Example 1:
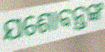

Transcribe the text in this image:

ଯଶୋବନ୍ତଙ୍କ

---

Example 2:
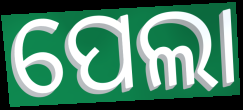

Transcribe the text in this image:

ପେଲା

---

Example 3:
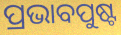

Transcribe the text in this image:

ପ୍ରଭାବପୁଷ୍ଟ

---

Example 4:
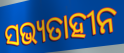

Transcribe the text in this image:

ସଭ୍ୟତାହୀନ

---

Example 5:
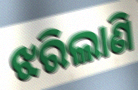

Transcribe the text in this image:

ଝରିଲାଣି